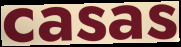
casas